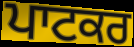
ਪਾਟਕਰ